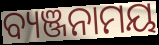
ବ୍ୟଞ୍ଜନାମୟ